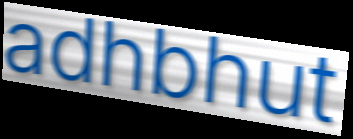
adhbhut